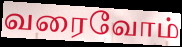
வரைவோம்